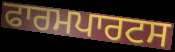
ਫਾਰਮਪਾਰਟਸ